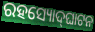
ରହସ୍ୟୋଦ୍‍ଘାଟନ